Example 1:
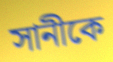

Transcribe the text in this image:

সানীকে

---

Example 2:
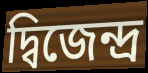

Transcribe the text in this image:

দ্বিজেন্দ্র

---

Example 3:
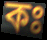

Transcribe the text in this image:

কঃ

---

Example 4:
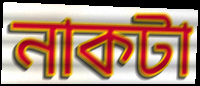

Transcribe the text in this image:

নাকটা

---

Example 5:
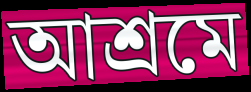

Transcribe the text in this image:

আশ্রমে